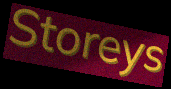
Storeys